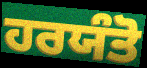
ਹਰਯੰਤੋ